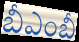
బీఎంబీ